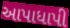
આપાધાપી